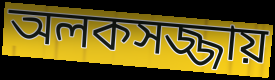
অলকসজ্জায়